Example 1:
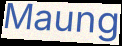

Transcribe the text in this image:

Maung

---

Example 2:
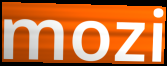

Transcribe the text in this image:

mozi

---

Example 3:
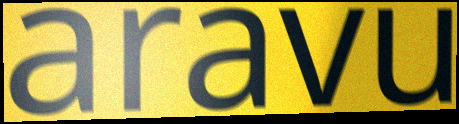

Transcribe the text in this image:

aravu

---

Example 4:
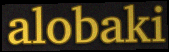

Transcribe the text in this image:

alobaki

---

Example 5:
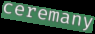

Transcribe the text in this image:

ceremany